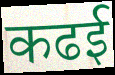
कढई